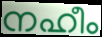
നഹീം